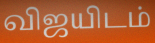
விஜயிடம்